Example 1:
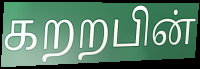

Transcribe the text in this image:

கறறபின்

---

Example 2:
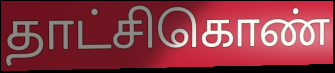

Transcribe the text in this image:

தாட்சிகொண்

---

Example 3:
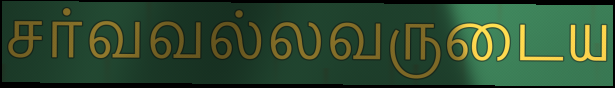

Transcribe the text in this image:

சர்வவல்லவருடைய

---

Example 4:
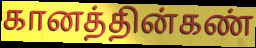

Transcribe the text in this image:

கானத்தின்கண்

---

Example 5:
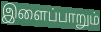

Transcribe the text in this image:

இளைப்பாறும்